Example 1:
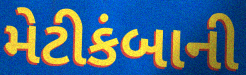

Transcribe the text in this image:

મેટીકંબાની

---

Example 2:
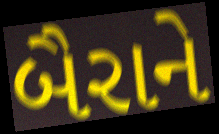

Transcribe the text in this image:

બૈરાને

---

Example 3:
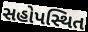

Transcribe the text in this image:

સહોપસ્થિત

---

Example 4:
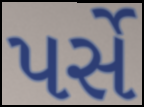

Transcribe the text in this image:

પર્સે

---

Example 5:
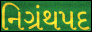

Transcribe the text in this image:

નિગ્રંથપદ